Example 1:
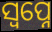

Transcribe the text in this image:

ସ୍ବପ୍ନେ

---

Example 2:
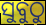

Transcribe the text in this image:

ସୁବୁଠୁ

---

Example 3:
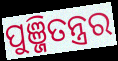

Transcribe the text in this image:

ପୁଞ୍ଜିତନ୍ତ୍ରର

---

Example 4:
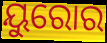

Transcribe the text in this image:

ୟୁରୋର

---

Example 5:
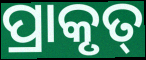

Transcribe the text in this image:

ପ୍ରାକୃତ୍